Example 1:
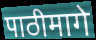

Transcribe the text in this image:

पाठीमागे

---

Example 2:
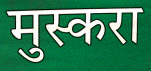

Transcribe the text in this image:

मुस्करा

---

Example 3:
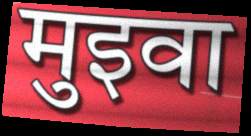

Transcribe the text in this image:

मुइवा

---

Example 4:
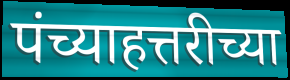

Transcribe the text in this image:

पंच्याहत्तरीच्या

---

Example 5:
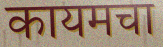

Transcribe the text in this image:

कायमचा